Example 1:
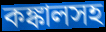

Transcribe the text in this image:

কঙ্কালসহ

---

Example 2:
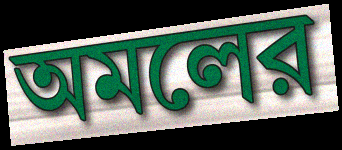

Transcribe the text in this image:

অমলের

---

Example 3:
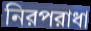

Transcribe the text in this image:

নিরপরাধা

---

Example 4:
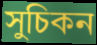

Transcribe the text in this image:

সুচিকন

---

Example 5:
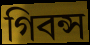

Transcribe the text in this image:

গিবন্স